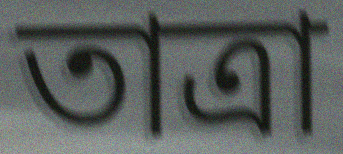
তাত্রা